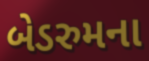
બેડરુમના